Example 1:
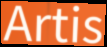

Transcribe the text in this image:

Artis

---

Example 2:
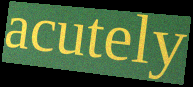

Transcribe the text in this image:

acutely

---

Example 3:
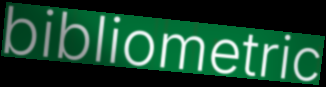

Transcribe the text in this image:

bibliometric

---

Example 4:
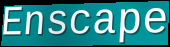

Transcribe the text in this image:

Enscape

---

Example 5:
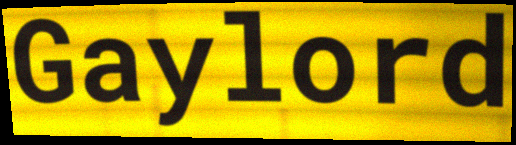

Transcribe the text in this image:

Gaylord